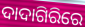
ଦାଦାଗିରିରେ